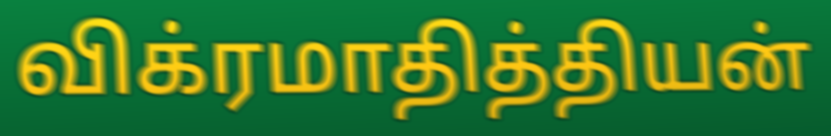
விக்ரமாதித்தியன்